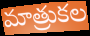
మాత్రుకల